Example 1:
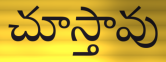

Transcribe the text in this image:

చూస్తావు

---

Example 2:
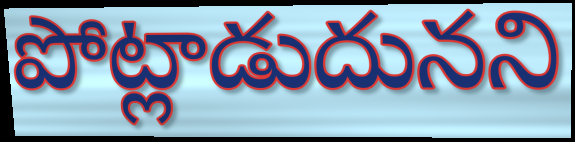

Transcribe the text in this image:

పోట్లాడుదునని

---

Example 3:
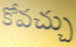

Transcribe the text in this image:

కోవచ్చు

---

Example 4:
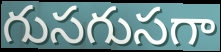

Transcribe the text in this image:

గుసగుసగా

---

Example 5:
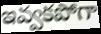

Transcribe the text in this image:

ఇవ్వకపోగా